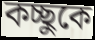
কচ্ছুকে